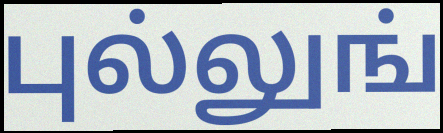
புல்லுங்